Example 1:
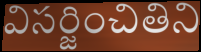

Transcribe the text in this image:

విసర్జించితిని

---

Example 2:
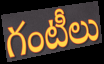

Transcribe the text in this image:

గంటీలు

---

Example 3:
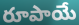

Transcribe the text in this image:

రూపాయే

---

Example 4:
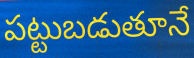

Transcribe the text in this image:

పట్టుబడుతూనే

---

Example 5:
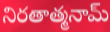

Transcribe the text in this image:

నిరతాత్మనామ్